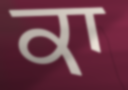
ਕਾ